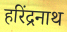
हरिंद्रनाथ